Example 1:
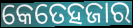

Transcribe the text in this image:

କେତେହଜାର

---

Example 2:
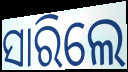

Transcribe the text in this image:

ସାରିଲେ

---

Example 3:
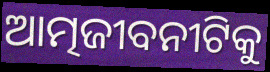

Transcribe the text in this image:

ଆତ୍ମଜୀବନୀଟିକୁ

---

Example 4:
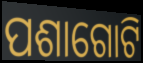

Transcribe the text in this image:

ପଶାଗୋଟି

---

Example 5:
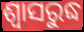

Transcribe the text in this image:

ଶ୍ବାସରୁଦ୍ଧ